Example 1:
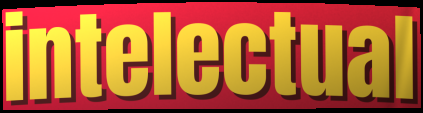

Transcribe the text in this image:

intelectual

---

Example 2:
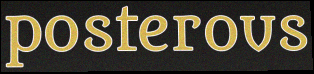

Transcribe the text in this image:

posterous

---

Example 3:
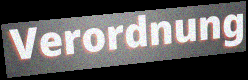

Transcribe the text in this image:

Verordnung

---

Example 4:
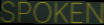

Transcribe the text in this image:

SPOKEN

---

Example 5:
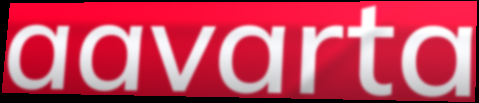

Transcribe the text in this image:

aavarta